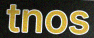
tnos